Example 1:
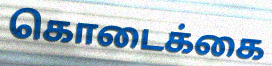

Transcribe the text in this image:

கொடைக்கை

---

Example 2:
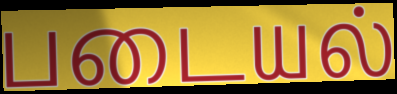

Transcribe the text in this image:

படையல்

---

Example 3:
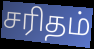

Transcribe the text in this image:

சரிதம்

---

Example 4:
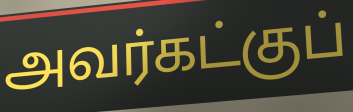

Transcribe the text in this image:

அவர்கட்குப்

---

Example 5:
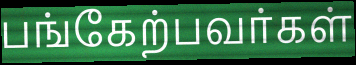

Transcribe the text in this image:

பங்கேற்பவர்கள்